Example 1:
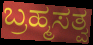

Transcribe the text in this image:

ಬ್ರಹ್ಮಸತ್ವ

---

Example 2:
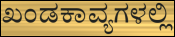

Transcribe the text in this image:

ಖಂಡಕಾವ್ಯಗಳಲ್ಲಿ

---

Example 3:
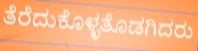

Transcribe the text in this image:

ತೆರೆದುಕೊಳ್ಳತೊಡಗಿದರು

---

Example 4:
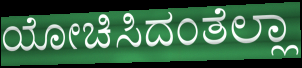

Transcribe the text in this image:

ಯೋಚಿಸಿದಂತೆಲ್ಲಾ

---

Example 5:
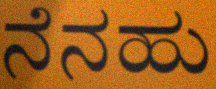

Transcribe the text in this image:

ನೆನಹು